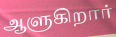
ஆளுகிறார்